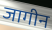
जागीन